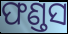
ଫଣ୍ଡସ